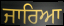
ਜਾਰਿਆ